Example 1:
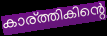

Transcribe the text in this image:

കാര്ത്തികിന്റെ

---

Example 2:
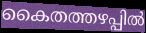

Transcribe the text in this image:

കൈതത്തഴപ്പിൽ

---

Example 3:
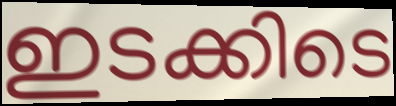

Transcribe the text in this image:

ഇടക്കിടെ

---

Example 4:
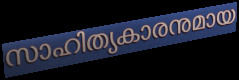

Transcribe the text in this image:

സാഹിത്യകാരനുമായ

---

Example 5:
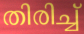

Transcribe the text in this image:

തിരിച്ച്